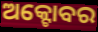
ଅକ୍ଟୋବର